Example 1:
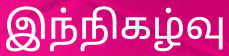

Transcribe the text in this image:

இந்நிகழ்வு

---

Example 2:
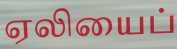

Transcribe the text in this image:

ஏலியைப்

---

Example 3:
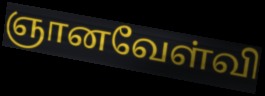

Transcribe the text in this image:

ஞானவேள்வி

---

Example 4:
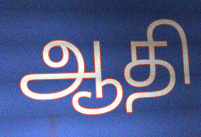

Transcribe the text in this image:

ஆதி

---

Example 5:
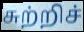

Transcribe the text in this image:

சுற்றிச்